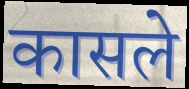
कासले